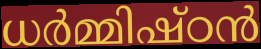
ധർമ്മിഷ്ഠൻ